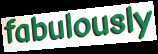
fabulously